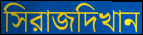
সিরাজদিখান